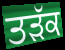
ਤੜੱਕ